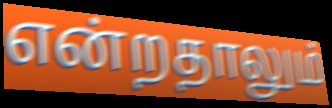
என்றதாலும்